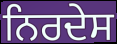
ਨਿਰਦੇਸ